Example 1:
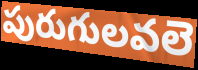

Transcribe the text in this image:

పురుగులవలె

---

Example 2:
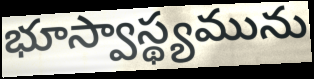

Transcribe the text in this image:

భూస్వాస్థ్యమును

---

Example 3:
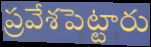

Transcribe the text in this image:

ప్రవేశపెట్టారు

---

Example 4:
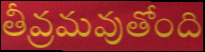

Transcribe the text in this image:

తీవ్రమవుతోంది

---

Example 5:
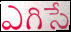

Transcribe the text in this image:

ఎగిసే